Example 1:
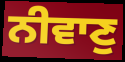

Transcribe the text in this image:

ਨੀਵਾਣੁ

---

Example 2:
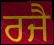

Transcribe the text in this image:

ਰਜੈ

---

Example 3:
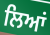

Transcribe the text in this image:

ਲਿਆਂ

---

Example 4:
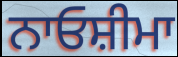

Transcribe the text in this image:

ਨਾਓਸ਼ੀਮਾ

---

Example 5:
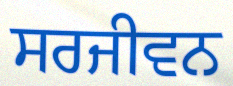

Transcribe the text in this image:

ਸਰਜੀਵਨ